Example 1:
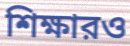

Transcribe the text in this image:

শিক্ষারও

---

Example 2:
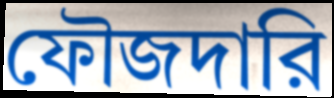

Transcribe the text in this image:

ফৌজদারি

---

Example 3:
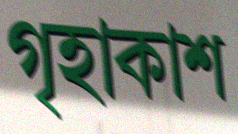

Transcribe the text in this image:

গৃহাকাশ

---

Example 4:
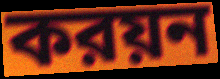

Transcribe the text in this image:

করয়ন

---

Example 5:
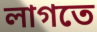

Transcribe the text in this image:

লাগতে